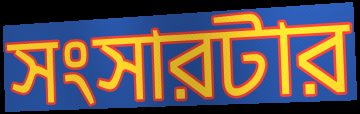
সংসারটার